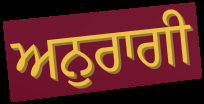
ਅਨੁਰਾਗੀ